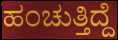
ಹಂಚುತ್ತಿದ್ದೆ